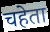
चहेता